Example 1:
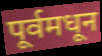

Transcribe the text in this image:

पूर्वमधून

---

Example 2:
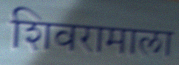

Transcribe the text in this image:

शिवरामाला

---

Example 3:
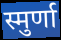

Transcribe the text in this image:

स्मुर्णा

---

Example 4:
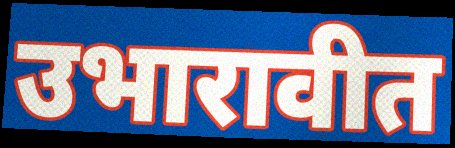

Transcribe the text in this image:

उभारावीत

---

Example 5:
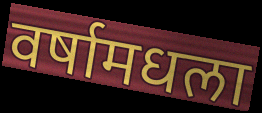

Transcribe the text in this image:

वर्षामधला